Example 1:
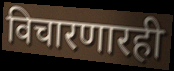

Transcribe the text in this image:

विचारणारही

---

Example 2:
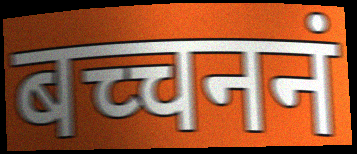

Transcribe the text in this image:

बच्चननं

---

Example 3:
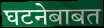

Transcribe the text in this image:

घटनेबाबत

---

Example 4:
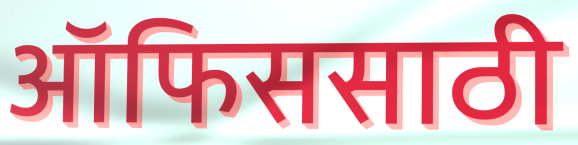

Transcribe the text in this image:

ऑफिससाठी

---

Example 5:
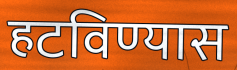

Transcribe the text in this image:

हटविण्यास